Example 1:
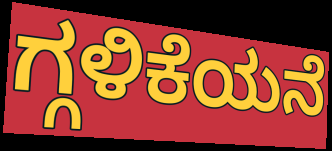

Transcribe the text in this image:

ಗ್ಗಳಿಕೆಯನೆ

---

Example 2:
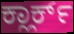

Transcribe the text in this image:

ಕ್ಲಾರ್ಕ್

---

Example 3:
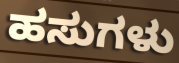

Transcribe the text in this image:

ಹಸುಗಳು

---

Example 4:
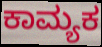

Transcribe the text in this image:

ಕಾಮ್ಯಕ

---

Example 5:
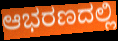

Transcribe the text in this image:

ಆಭರಣದಲ್ಲಿ